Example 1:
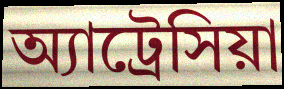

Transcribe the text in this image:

অ্যাট্রেসিয়া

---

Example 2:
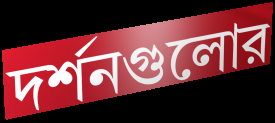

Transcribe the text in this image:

দর্শনগুলোর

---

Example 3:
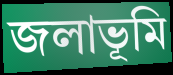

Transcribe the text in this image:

জলাভূমি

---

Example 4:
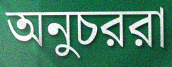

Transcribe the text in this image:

অনুচররা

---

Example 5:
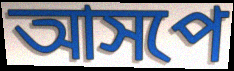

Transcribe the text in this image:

আসপে